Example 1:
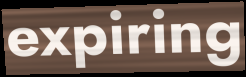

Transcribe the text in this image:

expiring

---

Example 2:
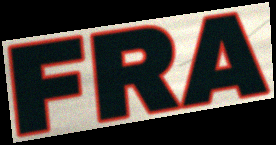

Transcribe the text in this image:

FRA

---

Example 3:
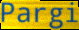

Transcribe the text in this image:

Pargi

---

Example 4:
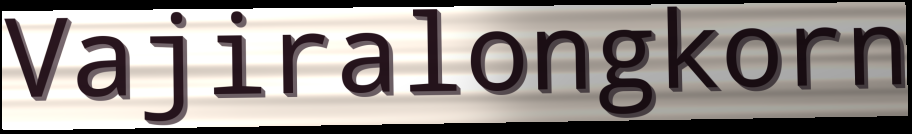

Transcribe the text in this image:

Vajiralongkorn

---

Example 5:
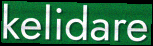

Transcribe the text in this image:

kelidare